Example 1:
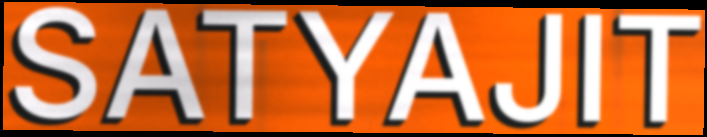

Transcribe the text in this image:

SATYAJIT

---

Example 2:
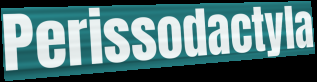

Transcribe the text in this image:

Perissodactyla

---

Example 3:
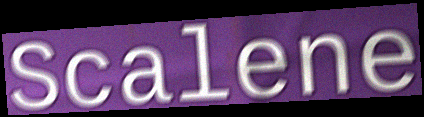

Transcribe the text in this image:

Scalene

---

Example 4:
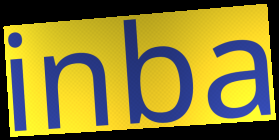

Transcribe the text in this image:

inba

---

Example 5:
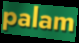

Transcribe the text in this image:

palam